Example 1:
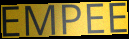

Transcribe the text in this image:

EMPEE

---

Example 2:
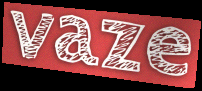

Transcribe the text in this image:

vaze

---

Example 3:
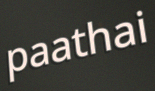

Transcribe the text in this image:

paathai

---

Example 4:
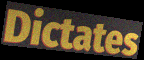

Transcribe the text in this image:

Dictates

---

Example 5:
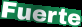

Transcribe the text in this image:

Fuerte